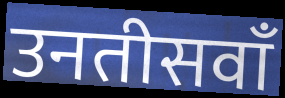
उनतीसवाँ